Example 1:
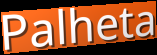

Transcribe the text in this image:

Palheta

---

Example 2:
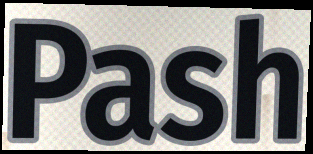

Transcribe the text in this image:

Pash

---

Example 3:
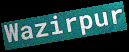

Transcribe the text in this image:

Wazirpur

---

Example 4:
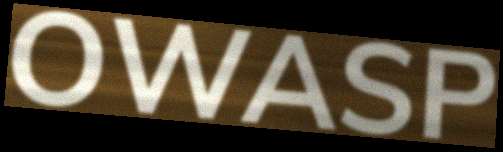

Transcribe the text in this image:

OWASP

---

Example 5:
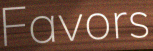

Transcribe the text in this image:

Favors